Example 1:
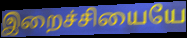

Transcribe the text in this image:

இறைச்சியையே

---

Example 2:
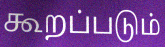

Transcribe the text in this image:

கூறப்படும்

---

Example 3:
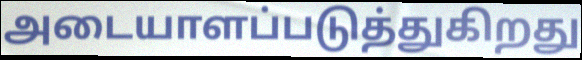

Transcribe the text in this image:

அடையாளப்படுத்துகிறது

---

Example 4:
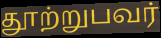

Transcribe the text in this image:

தூற்றுபவர்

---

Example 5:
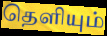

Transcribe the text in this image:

தெளியும்